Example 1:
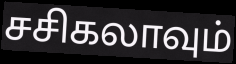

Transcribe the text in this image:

சசிகலாவும்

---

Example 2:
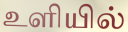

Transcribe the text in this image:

உளியில்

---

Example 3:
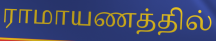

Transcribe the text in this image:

ராமாயணத்தில்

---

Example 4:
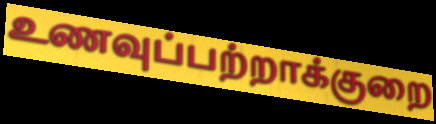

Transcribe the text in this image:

உணவுப்பற்றாக்குறை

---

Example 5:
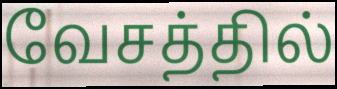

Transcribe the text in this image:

வேசத்தில்